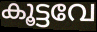
കൂട്ടവേ